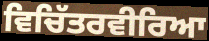
ਵਿਚਿੱਤਰਵੀਰਿਆ